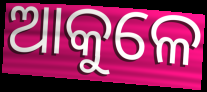
ଆକୁଳେ